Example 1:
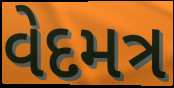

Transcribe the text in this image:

વેદમત્ર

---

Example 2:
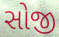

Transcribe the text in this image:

સોજી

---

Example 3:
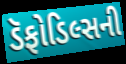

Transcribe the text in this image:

ડૅફોડિલ્સની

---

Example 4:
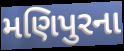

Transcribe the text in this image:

મણિપુરના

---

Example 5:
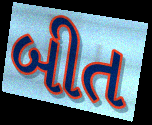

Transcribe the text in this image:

બીત